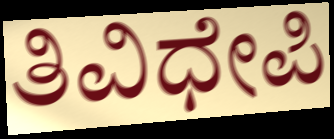
ತಿವಿಧೇಪಿ